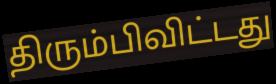
திரும்பிவிட்டது